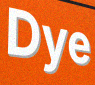
Dye